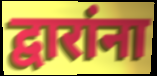
द्वारांना